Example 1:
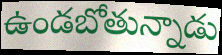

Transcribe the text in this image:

ఉండబోతున్నాడు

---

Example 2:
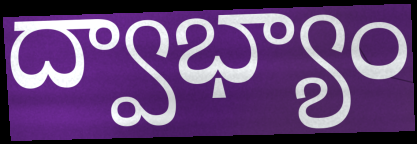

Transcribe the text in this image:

ద్వాభ్యాం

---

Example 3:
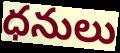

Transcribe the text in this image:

ధనులు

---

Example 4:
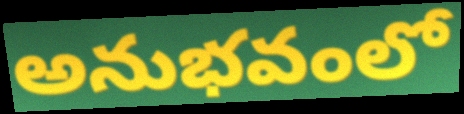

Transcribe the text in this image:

అనుభవంలో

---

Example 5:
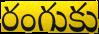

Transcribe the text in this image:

రంగుకు